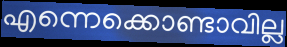
എന്നെക്കൊണ്ടാവില്ല